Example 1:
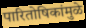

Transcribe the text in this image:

पारितोषिकांमुळे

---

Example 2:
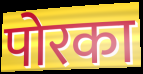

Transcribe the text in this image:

पोरका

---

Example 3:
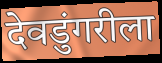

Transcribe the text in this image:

देवडुंगरीला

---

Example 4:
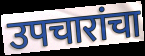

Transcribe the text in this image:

उपचारांचा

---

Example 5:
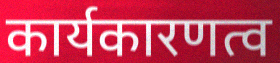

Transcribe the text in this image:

कार्यकारणत्व